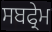
ਸਬਫ੍ਰੇਮ